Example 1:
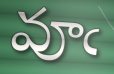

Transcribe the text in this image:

వూఁ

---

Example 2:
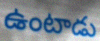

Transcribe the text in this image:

ఉంటాడు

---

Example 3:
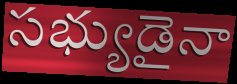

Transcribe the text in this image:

సభ్యుడైనా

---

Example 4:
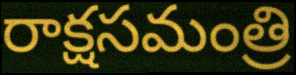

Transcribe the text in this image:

రాక్షసమంత్రి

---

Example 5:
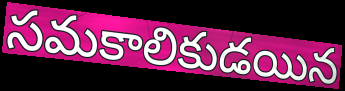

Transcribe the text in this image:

సమకాలికుడయిన